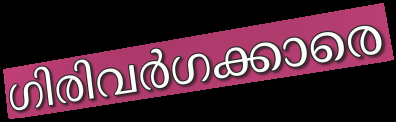
ഗിരിവർഗക്കാരെ